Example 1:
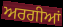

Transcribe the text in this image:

ਅਰਗੀਆਂ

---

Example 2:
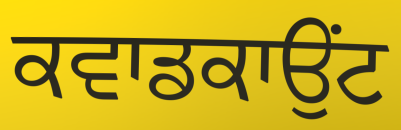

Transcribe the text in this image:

ਕਵਾਡਕਾਉਂਟ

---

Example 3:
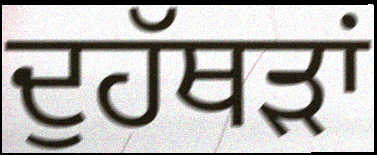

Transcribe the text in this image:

ਦੁਹੱਥੜਾਂ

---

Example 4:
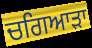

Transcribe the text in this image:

ਚਗਿਆੜਾ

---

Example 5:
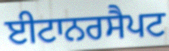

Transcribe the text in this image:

ਈਟਾਨਰਸੈਪਟ